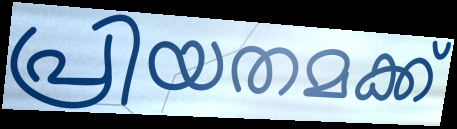
പ്രിയതമക്ക്